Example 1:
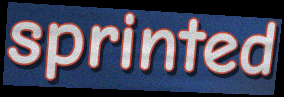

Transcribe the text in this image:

sprinted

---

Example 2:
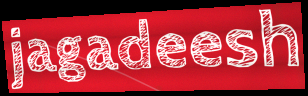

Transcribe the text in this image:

jagadeesh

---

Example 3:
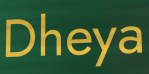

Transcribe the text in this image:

Dheya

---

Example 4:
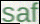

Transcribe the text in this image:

saf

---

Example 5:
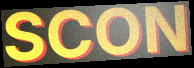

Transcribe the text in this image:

SCON